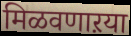
मिळवणाऱया